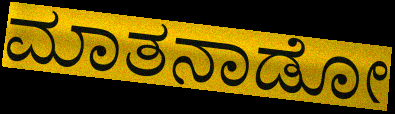
ಮಾತನಾಡೋ